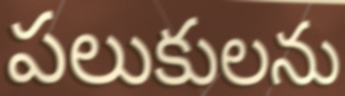
పలుకులను